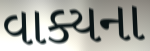
વાક્યના